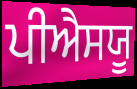
ਪੀਐਸਯੂ